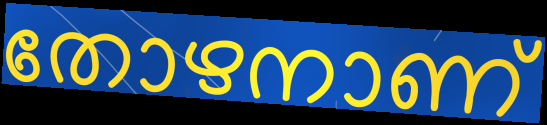
തോഴനാണ്